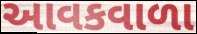
આવકવાળા